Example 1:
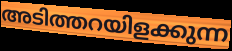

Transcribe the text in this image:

അടിത്തറയിളക്കുന്ന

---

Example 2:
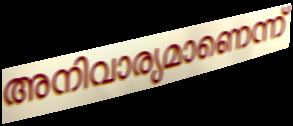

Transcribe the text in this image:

അനിവാര്യമാണെന്ന്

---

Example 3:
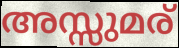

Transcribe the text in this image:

അസ്സുമര്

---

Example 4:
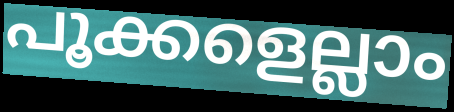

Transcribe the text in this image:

പൂക്കളെല്ലാം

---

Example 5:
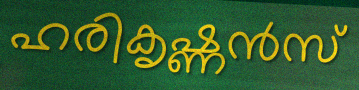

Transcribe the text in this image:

ഹരികൃഷ്ണൻസ്